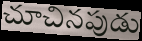
చూచినపుడు